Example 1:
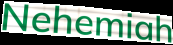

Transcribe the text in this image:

Nehemiah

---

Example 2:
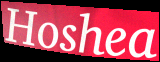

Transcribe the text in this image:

Hoshea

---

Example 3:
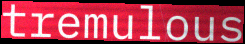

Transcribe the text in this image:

tremulous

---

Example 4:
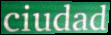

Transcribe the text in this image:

ciudad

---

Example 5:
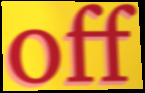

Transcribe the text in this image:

off